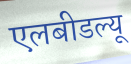
एलबीडल्यू